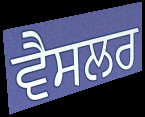
ਵੈਸਲਰ